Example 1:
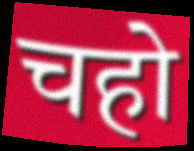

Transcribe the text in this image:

चहो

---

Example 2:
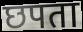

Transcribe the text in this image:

छपता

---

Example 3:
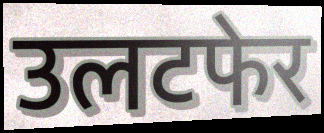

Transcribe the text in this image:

उलटफेर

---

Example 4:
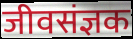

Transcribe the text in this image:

जीवसंज्ञक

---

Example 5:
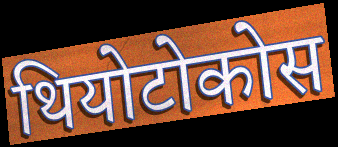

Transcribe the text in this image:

थियोटोकोस